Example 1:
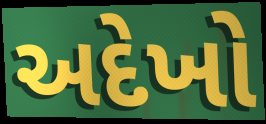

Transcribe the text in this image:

અદેખો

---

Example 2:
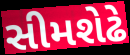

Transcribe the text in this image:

સીમશેઢે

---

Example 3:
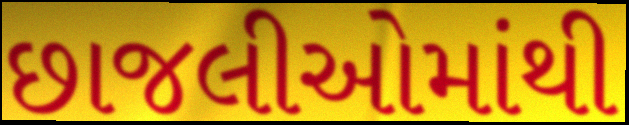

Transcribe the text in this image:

છાજલીઓમાંથી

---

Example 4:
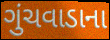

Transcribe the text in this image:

ગુંચવાડાના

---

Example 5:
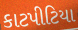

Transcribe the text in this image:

કાટપીટિયા